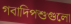
গবাদিপশুগুলো